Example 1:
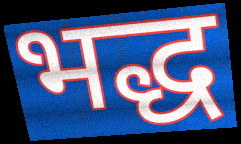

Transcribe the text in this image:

भद्ध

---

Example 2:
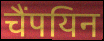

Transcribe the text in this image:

चैंपयिन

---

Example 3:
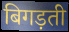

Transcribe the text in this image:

बिगड़ती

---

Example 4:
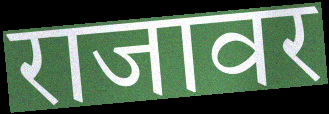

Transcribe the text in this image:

राजावर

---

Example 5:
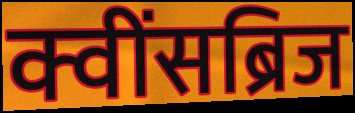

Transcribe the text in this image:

क्वींसब्रिज